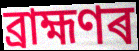
ব্ৰাহ্মণৰ